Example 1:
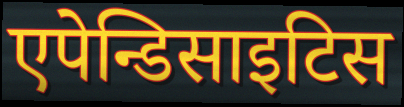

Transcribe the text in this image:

एपेन्डिसाइटिस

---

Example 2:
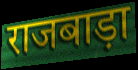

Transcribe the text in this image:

राजबाड़ा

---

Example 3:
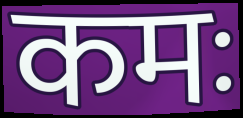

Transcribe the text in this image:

कमः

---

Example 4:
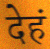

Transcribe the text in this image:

देहं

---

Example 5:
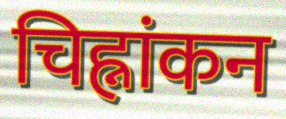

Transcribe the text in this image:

चिह्नांकन